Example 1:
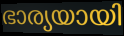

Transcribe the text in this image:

ഭാര്യയായി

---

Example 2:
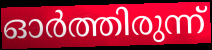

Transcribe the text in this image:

ഓർത്തിരുന്ന്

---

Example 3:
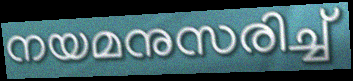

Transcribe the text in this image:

നയമനുസരിച്ച്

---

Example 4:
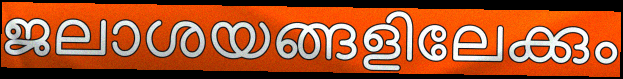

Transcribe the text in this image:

ജലാശയങ്ങളിലേക്കും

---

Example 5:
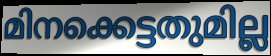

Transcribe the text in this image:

മിനക്കെട്ടതുമില്ല